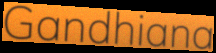
Gandhiana